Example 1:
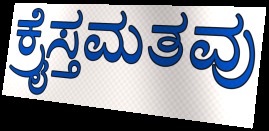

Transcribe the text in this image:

ಕ್ರೈಸ್ತಮತವು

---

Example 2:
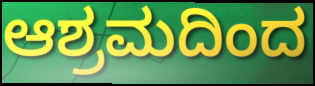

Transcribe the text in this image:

ಆಶ್ರಮದಿಂದ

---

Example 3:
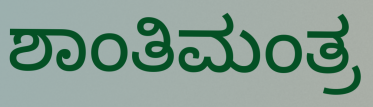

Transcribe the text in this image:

ಶಾಂತಿಮಂತ್ರ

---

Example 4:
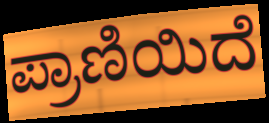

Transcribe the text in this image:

ಪ್ರಾಣಿಯಿದೆ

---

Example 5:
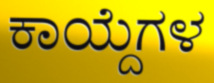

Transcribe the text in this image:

ಕಾಯ್ದೆಗಳ